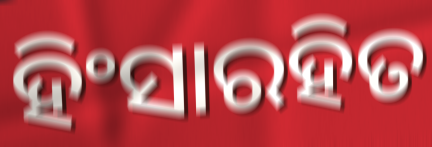
ହିଂସାରହିତ